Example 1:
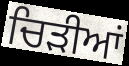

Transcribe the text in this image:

ਚਿੜੀਆਂ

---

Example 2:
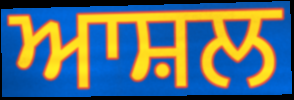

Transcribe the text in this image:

ਆਸ਼ਲ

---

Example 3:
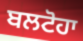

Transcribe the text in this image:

ਬਲਟੋਹਾ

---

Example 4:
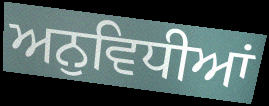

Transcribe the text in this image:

ਅਨੁਵਿਧੀਆਂ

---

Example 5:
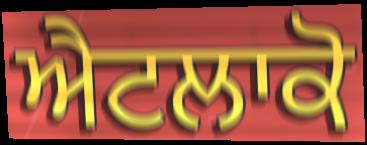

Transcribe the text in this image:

ਐਟਲਾਕੋ